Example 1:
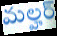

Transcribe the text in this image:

మల్హర్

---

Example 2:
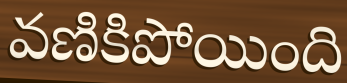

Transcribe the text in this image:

వణికిపోయింది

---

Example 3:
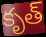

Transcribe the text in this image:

కృత్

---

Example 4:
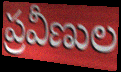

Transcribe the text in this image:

ప్రవీణుల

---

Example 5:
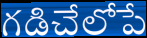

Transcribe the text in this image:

గడిచేలోపే